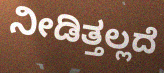
ನೀಡಿತ್ತಲ್ಲದೆ